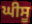
ਘੀਸੂ